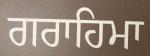
ਗਰਾਹਿਮਾ